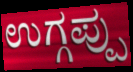
ಉಗ್ಗಪ್ಪು